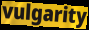
vulgarity